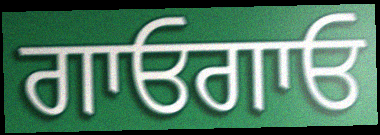
ਗਾਓਗਾਓ